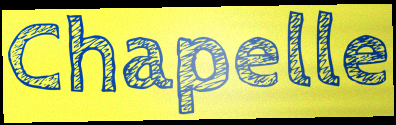
Chapelle